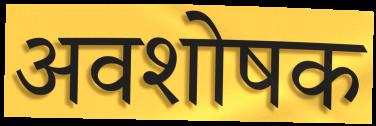
अवशोषक